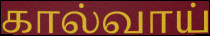
கால்வாய்